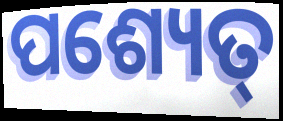
ପଶ୍ୟେତ୍